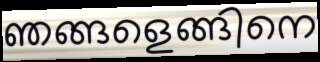
ഞങ്ങളെങ്ങിനെ